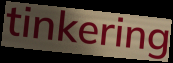
tinkering